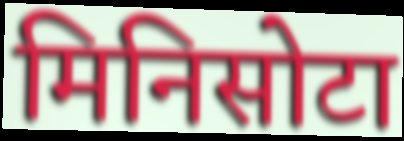
मिनिसोटा